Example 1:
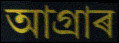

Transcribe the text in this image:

আগ্ৰাৰ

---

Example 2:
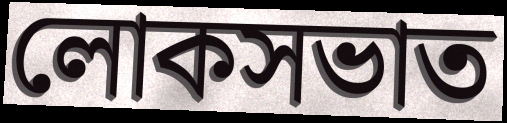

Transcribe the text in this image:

লোকসভাত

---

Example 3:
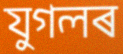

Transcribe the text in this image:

যুগলৰ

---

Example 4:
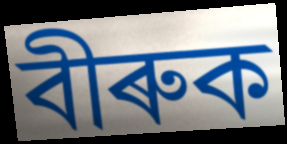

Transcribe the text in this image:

বীৰুক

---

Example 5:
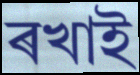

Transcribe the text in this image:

ৰখাই